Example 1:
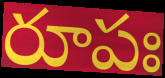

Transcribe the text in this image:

రూపః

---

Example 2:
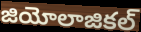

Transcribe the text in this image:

జియోలాజికల్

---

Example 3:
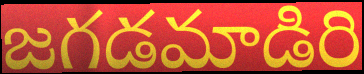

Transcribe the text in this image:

జగడమాడిరి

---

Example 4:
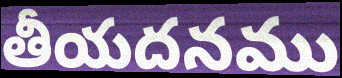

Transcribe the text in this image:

తీయదనము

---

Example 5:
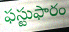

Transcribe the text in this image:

ఫస్టుఫారం